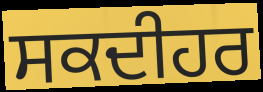
ਸਕਦੀਹਰ